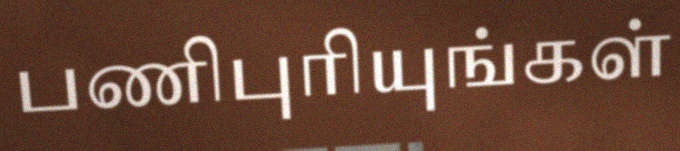
பணிபுரியுங்கள்